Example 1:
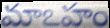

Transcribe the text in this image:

మాఽహం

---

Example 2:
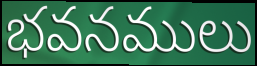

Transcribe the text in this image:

భవనములు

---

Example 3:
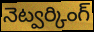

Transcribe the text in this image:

నెట్వర్కింగ్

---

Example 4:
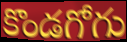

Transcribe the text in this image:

కొండగోగు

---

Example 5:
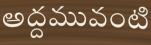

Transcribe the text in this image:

అద్దమువంటి